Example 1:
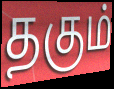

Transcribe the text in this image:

தகும்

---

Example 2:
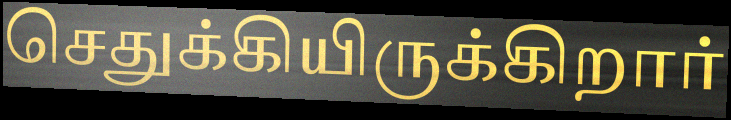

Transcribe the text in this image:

செதுக்கியிருக்கிறார்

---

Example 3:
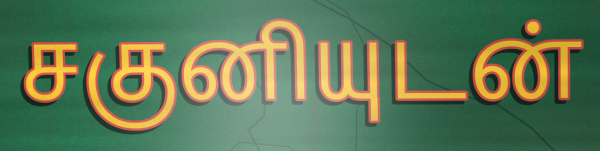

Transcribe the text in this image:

சகுனியுடன்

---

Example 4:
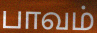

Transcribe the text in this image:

பாவம்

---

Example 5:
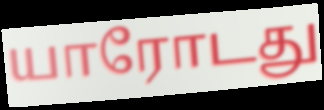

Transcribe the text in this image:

யாரோடது